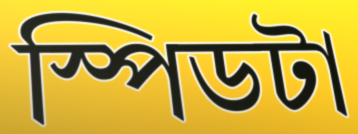
স্পিডটা